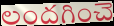
లందగించె